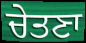
ਚੇਤਣਾ